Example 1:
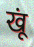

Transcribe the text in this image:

खूं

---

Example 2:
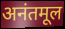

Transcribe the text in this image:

अनंतमूल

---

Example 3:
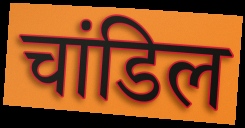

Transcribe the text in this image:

चांडिल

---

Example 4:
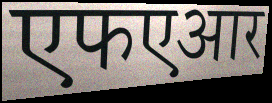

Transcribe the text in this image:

एफएआर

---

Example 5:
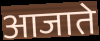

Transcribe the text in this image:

आजाते